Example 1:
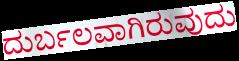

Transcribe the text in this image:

ದುರ್ಬಲವಾಗಿರುವುದು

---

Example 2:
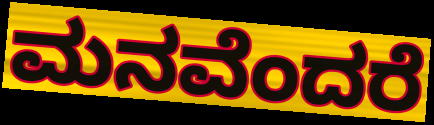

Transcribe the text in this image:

ಮನವೆಂದರೆ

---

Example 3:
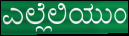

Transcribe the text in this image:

ಎಲ್ಲೆಲಿಯುಂ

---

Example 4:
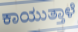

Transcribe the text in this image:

ಕಾಯುತ್ತಾಳೆ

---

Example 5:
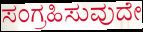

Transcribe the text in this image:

ಸಂಗ್ರಹಿಸುವುದೇ